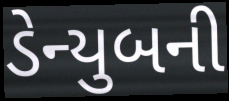
ડેન્યુબની